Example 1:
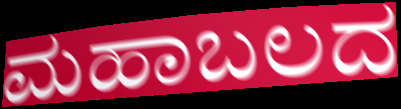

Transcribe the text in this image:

ಮಹಾಬಲದ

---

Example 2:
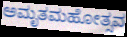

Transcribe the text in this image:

ಅಮೃತಮಹೋತ್ಸವ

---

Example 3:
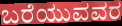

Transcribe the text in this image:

ಬರೆಯುವವರ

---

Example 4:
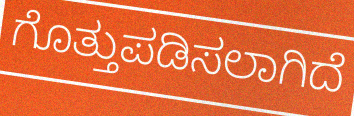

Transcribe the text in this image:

ಗೊತ್ತುಪಡಿಸಲಾಗಿದೆ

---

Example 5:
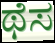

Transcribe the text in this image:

ಥೆಸ